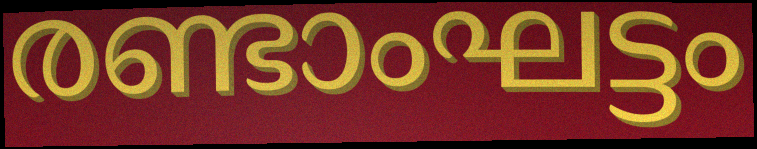
രണ്ടാംഘട്ടം